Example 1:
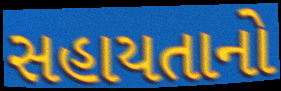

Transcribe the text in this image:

સહાયતાનો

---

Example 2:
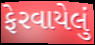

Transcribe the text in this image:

ફેરવાયેલું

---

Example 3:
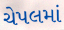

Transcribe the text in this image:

ચેપલમાં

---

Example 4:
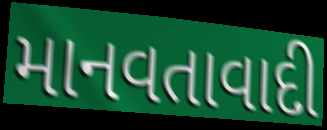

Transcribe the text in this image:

માનવતાવાદી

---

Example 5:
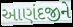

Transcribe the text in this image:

આણંદજીને